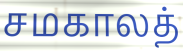
சமகாலத்